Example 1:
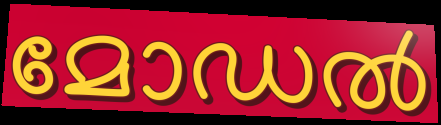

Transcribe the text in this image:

മോഡൽ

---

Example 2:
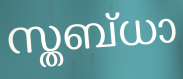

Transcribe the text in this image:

സ്തബ്ധാ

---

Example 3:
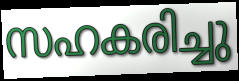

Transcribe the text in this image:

സഹകരിച്ചു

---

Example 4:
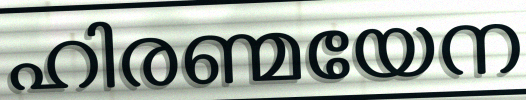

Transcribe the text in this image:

ഹിരണ്മയേന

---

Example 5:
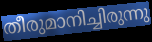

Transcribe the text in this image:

തീരുമാനിച്ചിരുന്നു